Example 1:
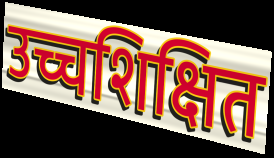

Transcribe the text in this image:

उच्चशिक्षित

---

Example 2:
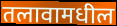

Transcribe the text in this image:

तलावामधील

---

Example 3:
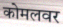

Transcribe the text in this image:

कोमलवर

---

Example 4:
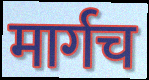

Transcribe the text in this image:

मार्गच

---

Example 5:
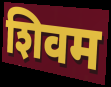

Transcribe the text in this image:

शिवम